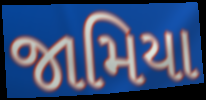
જામિયા